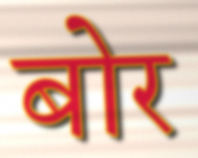
बोर